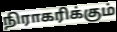
நிராகரிக்கும்